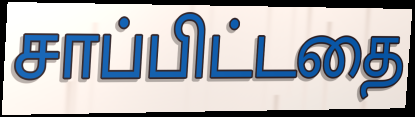
சாப்பிட்டதை